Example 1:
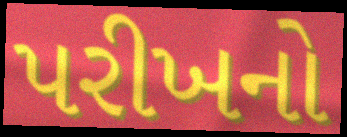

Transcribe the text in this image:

પરીખનો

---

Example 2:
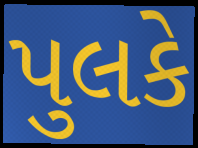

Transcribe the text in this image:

પુલકે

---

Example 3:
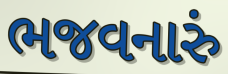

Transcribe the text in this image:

ભજવનારું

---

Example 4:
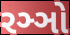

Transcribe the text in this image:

રઞ્ઞો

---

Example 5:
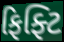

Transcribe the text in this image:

ફિફ્ટિ